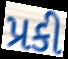
પ્રકી